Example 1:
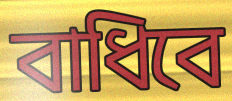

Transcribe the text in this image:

বাধিবে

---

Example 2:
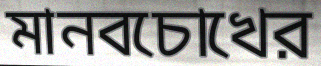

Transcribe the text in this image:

মানবচোখের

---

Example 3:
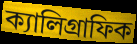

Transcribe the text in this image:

ক্যালিগ্রাফিক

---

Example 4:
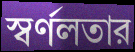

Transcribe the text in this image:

স্বর্ণলতার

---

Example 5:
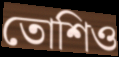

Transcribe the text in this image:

তোশিও